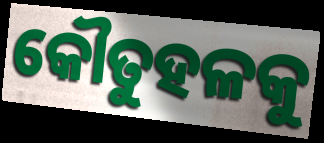
କୌତୁହଳକୁ